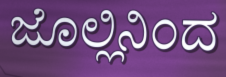
ಜೊಲ್ಲಿನಿಂದ